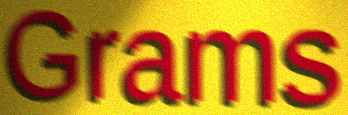
Grams